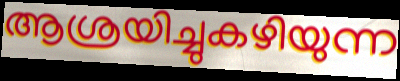
ആശ്രയിച്ചുകഴിയുന്ന